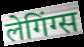
लेगिंग्स